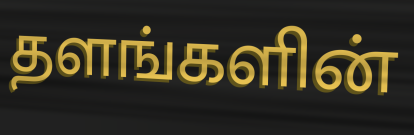
தளங்களின்